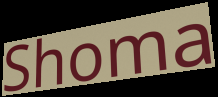
Shoma